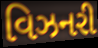
વિઝનરી